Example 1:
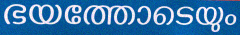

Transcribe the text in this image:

ഭയത്തോടെയും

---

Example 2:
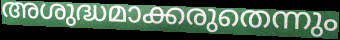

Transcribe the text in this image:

അശുദ്ധമാക്കരുതെന്നും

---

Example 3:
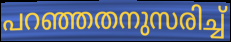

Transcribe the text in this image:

പറഞ്ഞതനുസരിച്ച്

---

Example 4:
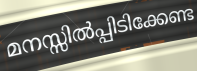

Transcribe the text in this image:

മനസ്സിൽപ്പിടിക്കേണ്ട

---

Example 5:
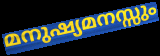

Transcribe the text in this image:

മനുഷ്യമനസ്സും